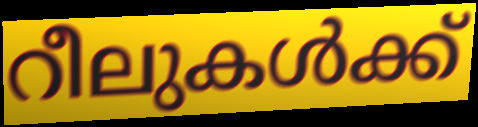
റീലുകൾക്ക്